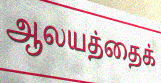
ஆலயத்தைக்